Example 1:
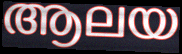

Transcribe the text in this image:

ആലയ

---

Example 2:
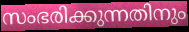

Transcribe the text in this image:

സംഭരിക്കുന്നതിനും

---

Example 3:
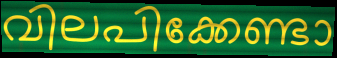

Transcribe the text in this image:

വിലപിക്കേണ്ടാ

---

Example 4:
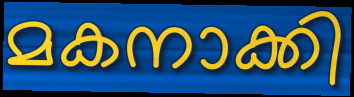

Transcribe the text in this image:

മകനാക്കി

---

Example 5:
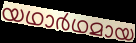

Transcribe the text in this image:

യഥാർഥമായ